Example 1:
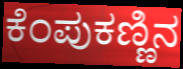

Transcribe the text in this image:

ಕೆಂಪುಕಣ್ಣಿನ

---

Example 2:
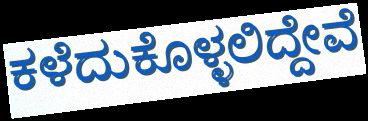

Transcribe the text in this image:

ಕಳೆದುಕೊಳ್ಳಲಿದ್ದೇವೆ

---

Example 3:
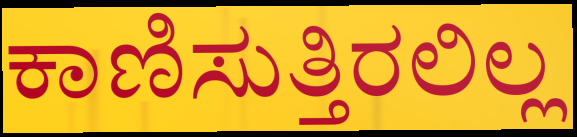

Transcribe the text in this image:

ಕಾಣಿಸುತ್ತಿರಲಿಲ್ಲ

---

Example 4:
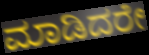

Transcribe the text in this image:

ಮಾಡಿದರೇ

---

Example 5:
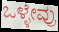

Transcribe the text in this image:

ಒಳ್ಳೇವ್ರು